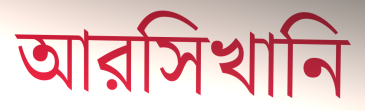
আরসিখানি